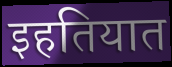
इहतियात